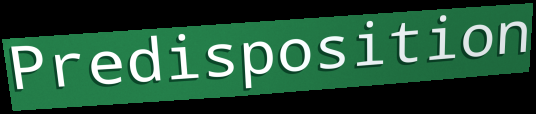
Predisposition